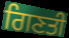
ਗਿਣਤੀ